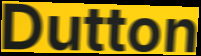
Dutton